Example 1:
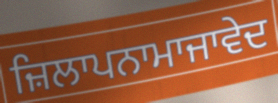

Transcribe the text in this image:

ਜ਼ਿਲਾਪਨਾਮਾਜਾਵੇਦ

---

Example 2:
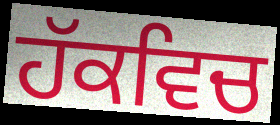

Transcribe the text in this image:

ਹੱਕਵਿਚ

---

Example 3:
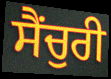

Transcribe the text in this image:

ਸੈਂਚੁਰੀ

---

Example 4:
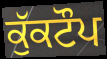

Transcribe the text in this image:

ਕੁੱਕਟੌਪ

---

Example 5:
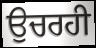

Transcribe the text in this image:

ਉਚਰਹੀ